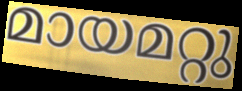
മായമറ്റു